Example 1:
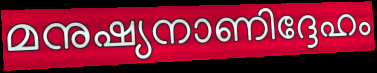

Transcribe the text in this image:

മനുഷ്യനാണിദ്ദേഹം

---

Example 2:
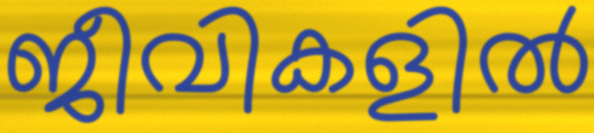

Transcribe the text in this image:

ജീവികളിൽ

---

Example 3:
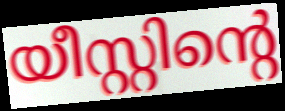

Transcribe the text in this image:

യീസ്റ്റിന്റെ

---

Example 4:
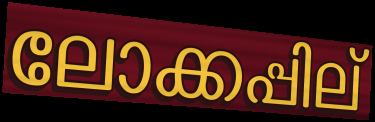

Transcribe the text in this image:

ലോക്കപ്പില്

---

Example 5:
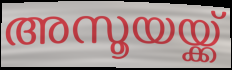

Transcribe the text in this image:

അസൂയയ്ക്ക്